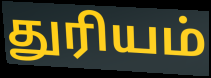
துரியம்